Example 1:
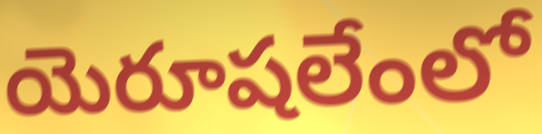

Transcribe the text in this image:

యెరూషలేంలో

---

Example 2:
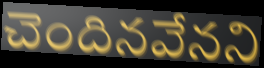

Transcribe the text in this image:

చెందినవేనని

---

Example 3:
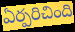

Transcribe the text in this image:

ఏర్పరిచింది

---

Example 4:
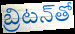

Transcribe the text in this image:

బ్రిటన్‌తో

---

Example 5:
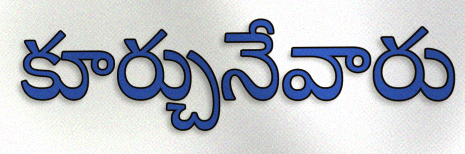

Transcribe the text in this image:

కూర్చునేవారు